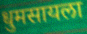
धुमसायला